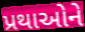
પ્રથાઓને